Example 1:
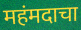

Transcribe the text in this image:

महंमदाचा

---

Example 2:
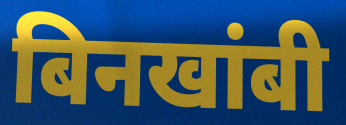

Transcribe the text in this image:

बिनखांबी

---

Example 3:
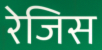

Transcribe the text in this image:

रेजिस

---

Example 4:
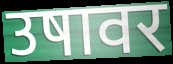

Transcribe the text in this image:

उषावर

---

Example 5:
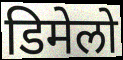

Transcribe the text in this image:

डिमेलो